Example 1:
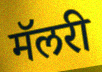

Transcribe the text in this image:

मॅलरी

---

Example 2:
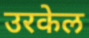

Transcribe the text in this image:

उरकेल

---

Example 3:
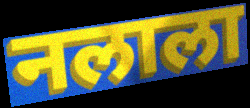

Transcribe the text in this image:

नलाला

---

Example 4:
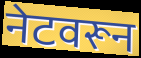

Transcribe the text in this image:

नेटवरून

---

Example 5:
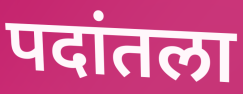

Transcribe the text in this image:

पदांतला